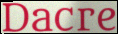
Dacre